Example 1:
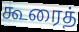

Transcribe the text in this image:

கூரைத்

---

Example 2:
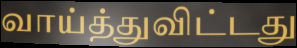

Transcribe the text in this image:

வாய்த்துவிட்டது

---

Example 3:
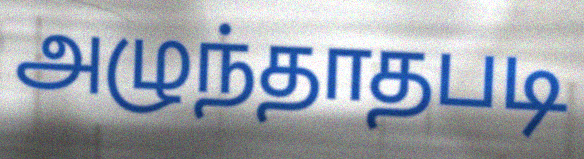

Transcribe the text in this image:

அழுந்தாதபடி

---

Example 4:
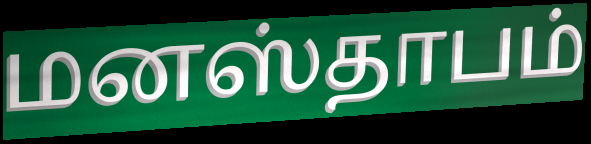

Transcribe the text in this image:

மனஸ்தாபம்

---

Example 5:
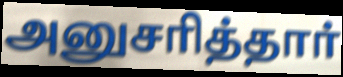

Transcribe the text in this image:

அனுசரித்தார்